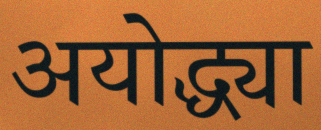
अयोद्ध्या